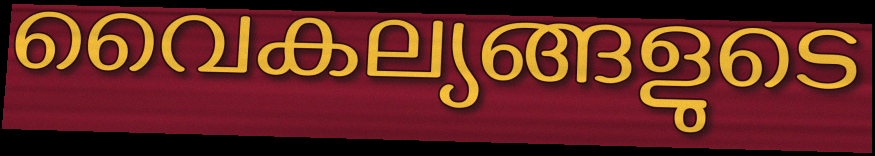
വൈകല്യങ്ങളുടെ